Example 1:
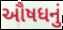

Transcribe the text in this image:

ઔષધનું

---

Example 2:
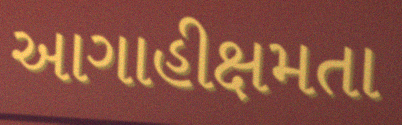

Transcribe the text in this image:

આગાહીક્ષમતા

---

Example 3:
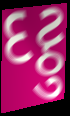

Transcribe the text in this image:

દટ્ઠુ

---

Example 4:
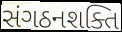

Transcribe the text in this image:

સંગઠનશક્તિ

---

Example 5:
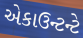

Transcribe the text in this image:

એકાઉન્ટન્ટે